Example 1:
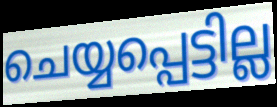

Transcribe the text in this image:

ചെയ്യപ്പെട്ടില്ല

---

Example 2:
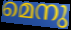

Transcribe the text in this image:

മെനു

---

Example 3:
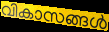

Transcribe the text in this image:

വികാസങ്ങൾ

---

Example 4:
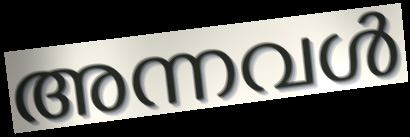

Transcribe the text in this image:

അന്നവൾ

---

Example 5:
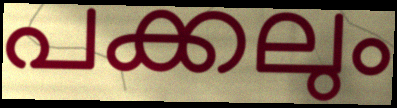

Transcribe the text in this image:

പക്കലും